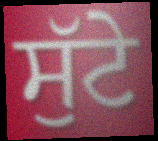
ਸੁੱਟੇ